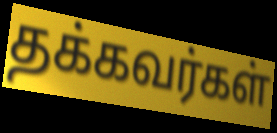
தக்கவர்கள்